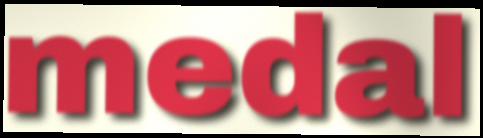
medal